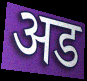
अड